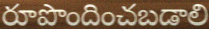
రూపొందించబడాలి